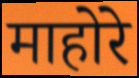
माहोरे